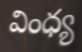
వింధ్య